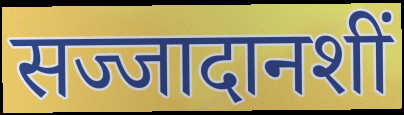
सज्जादानशीं